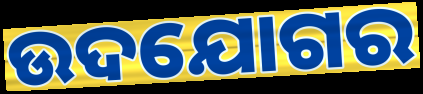
ଉଦଯୋଗର